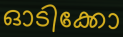
ഓടിക്കോ